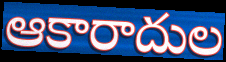
ఆకారాదుల